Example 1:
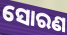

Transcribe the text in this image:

ସୋରଣ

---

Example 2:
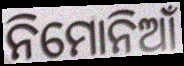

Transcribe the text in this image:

ନିମୋନିଆଁ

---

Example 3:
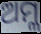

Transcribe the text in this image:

ଅମ୍ଳ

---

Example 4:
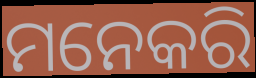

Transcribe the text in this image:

ମନେକରି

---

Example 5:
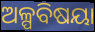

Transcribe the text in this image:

ଅଳ୍ପବିଷୟା